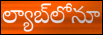
ల్యాబ్‌లోనూ